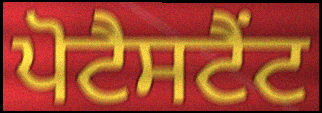
ਪੋਟੈਸਟੈਂਟ